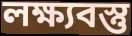
লক্ষ্যবস্তু